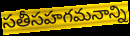
సతీసహగమనాన్ని